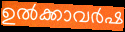
ഉൽക്കാവർഷ